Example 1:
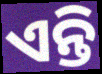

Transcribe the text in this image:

ଏନ୍ତି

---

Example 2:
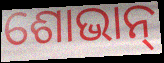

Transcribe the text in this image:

ଶୋଭାନ୍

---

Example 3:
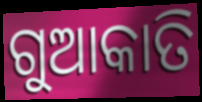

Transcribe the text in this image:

ଗୁଆକାତି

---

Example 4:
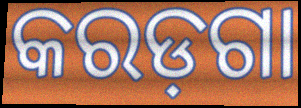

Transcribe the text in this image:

କରଡ଼ଗା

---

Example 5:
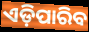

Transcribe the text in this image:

ଏଡ଼ିପାରିବ